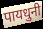
पायधुनी